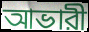
আভারী